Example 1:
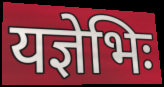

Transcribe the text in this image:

यज्ञेभिः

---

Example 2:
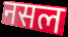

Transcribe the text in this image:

नसल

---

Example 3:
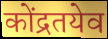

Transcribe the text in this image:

कोंद्रतयेव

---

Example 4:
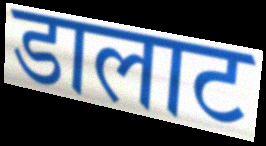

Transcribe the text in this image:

डालाट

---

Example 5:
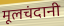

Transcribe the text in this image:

मूलचंदानी